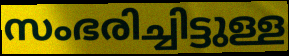
സംഭരിച്ചിട്ടുള്ള